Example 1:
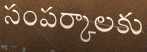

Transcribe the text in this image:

సంపర్కాలకు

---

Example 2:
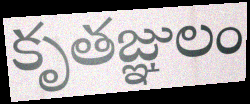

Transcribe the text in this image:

కృతజ్ఞులం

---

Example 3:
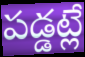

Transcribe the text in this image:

పడ్డట్లే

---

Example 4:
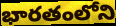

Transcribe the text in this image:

భారతంలోని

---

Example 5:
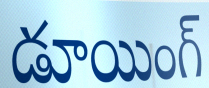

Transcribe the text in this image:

డూయింగ్